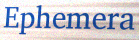
Ephemera